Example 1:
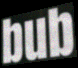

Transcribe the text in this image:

bub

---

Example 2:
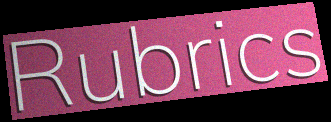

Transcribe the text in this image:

Rubrics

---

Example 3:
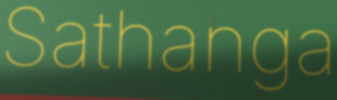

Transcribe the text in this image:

Sathanga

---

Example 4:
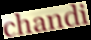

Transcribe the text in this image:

chandi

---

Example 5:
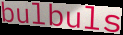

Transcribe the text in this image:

bulbuls